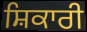
ਸ਼ਿਕਾਰੀ